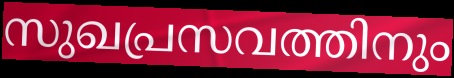
സുഖപ്രസവത്തിനും